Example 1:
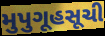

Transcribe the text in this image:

મુપુગૂહસૂચી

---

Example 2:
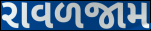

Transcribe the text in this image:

રાવળજામ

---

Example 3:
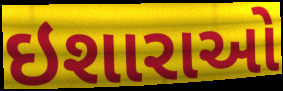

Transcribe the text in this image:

ઇશારાઓ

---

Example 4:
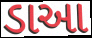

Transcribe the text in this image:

ડાઆ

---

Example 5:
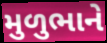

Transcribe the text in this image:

મુળુભાને